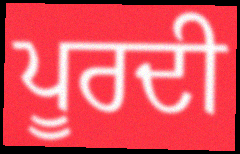
ਪੂਰਦੀ